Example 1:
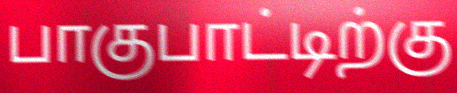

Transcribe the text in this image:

பாகுபாட்டிற்கு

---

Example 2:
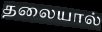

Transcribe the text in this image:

தலையால்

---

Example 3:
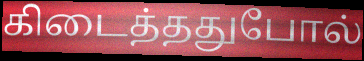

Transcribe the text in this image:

கிடைத்ததுபோல்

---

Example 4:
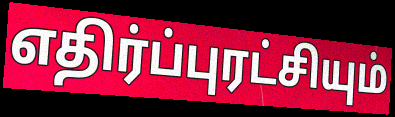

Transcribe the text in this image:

எதிர்ப்புரட்சியும்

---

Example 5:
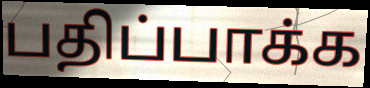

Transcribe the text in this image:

பதிப்பாக்க